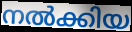
നൽക്കിയ